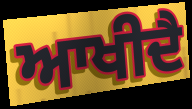
ਆਖੀਦੈ